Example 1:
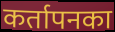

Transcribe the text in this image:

कर्तापनका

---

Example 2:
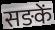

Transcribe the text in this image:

सङकें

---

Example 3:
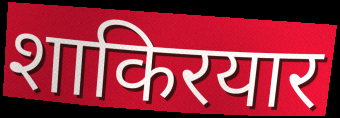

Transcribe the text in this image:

शाकिरयार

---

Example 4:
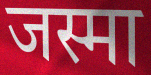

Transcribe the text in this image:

जस्मा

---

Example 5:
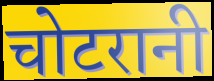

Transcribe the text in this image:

चोटरानी